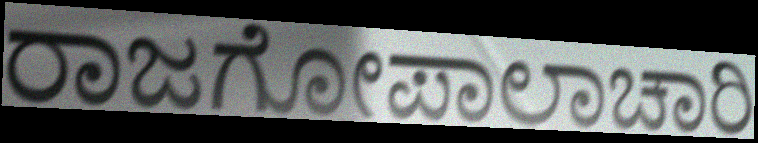
ರಾಜಗೋಪಾಲಾಚಾರಿ